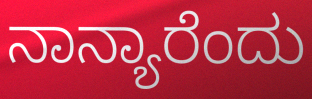
ನಾನ್ಯಾರೆಂದು